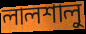
লালশালু